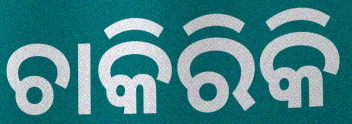
ଚାକିରିକି